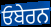
ਓਬੇਰਨ